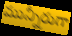
మున్నీరుగా